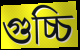
গুচ্চি